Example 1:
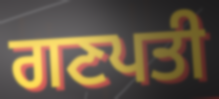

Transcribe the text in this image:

ਗਣਪਤੀ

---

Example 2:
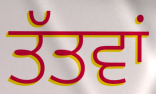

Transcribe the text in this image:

ਤੱਤਵਾਂ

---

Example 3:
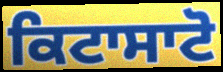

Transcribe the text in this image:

ਕਿਟਾਸਾਟੋ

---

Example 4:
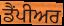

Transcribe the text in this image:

ਡੈਂਪੀਅਰ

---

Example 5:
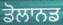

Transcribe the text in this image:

ਡੋਲਾਨਡ